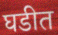
घडीत